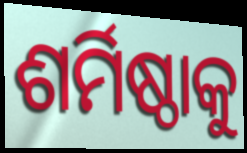
ଶର୍ମିଷ୍ଠାକୁ